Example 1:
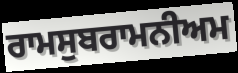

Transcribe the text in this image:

ਰਾਮਸੁਬਰਾਮਨੀਅਮ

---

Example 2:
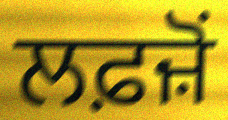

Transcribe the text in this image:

ਲਫ਼ਜ਼ੋਂ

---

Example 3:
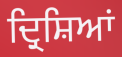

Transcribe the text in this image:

ਦ੍ਰਿਸ਼ਿਆਂ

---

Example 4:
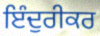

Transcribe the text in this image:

ਇੰਦੁਰੀਕਰ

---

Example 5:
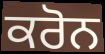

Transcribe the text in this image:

ਕਰੋਨ